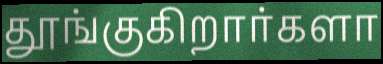
தூங்குகிறார்களா